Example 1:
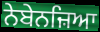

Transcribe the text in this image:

ਨੇਬੇਨਜ਼ਿਆ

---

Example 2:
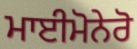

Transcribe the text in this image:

ਮਾਈਮੋਨੇਰੋ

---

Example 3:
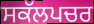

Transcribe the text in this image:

ਸਕੱਲਪਚਰ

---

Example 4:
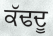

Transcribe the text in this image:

ਕੱਢਦੂ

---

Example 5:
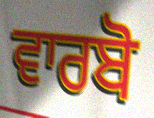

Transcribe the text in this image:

ਵਾਰਬੋ